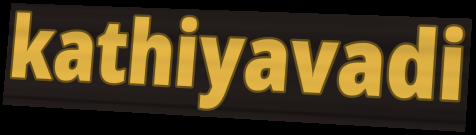
kathiyavadi